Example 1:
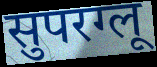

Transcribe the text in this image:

सुपरग्लू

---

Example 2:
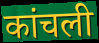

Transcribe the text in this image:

कांचली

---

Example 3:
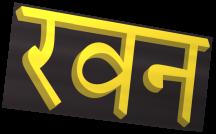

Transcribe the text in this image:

रवन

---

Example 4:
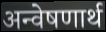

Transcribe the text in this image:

अन्वेषणार्थ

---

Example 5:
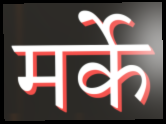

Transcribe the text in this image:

मर्के